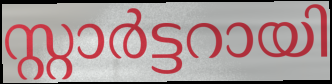
സ്റ്റാർട്ടറായി